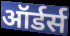
ऑर्डर्स